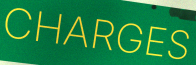
CHARGES